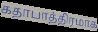
கதாபாத்திரமாக